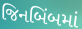
જિનબિંબમાં